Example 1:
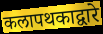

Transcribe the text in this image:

कलापथकाद्वारे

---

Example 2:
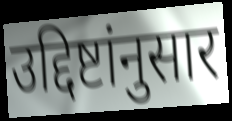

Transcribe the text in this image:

उद्दिष्टांनुसार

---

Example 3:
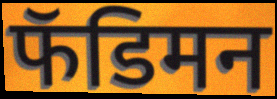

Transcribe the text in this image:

फॅडिमन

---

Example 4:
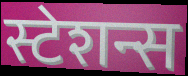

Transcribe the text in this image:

स्टेशन्स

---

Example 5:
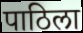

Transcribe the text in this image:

पाठिला